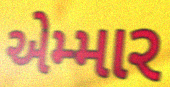
એમ્માર